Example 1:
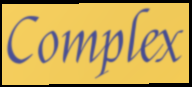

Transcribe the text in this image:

Complex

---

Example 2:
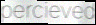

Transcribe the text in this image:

percieved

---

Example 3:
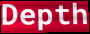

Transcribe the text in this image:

Depth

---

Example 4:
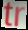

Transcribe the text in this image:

tr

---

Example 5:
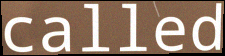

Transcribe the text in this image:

called